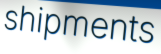
shipments